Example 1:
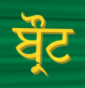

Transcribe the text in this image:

ਬ੍ਰੌਟ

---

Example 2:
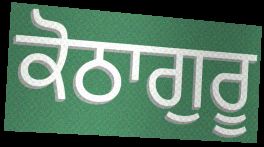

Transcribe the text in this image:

ਕੋਠਾਗੁਰੂ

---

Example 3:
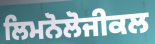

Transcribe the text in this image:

ਲਿਮਨੋਲੋਜੀਕਲ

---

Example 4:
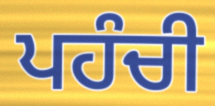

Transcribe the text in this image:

ਪਹੰਚੀ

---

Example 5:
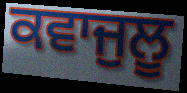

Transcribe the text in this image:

ਕਵਾਜੁਲੂ